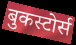
बुकस्टोर्स